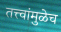
तत्त्वांमुळेच